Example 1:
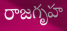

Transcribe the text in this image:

రాజగృహ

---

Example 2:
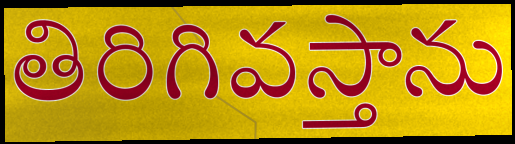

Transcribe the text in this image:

తిరిగివస్తాను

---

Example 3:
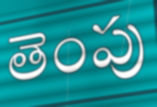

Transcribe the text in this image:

తెంపు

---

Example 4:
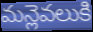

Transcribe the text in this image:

మన్లెవలుకి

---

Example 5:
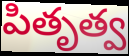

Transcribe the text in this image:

పితృత్వ